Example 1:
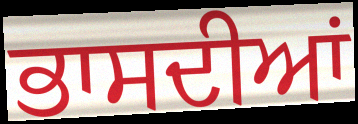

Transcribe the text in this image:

ਭਾਸਦੀਆਂ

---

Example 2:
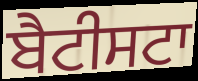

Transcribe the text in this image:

ਬੈਟੀਸਟਾ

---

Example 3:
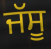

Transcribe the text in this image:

ਜੱਸੂ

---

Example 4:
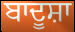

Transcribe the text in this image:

ਬਾਦੂਸ਼ਾ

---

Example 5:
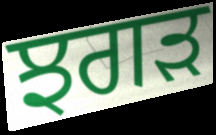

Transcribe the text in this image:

ਝਗੜ